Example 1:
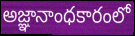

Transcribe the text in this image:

అజ్ఞానాంధకారంలో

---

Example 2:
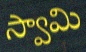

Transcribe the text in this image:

స్వామి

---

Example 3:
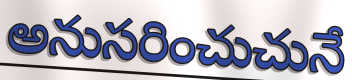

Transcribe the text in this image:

అనుసరించుచునే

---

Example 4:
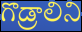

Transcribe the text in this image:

గొడ్రాలిని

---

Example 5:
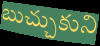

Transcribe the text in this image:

బుచ్చుకుని